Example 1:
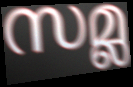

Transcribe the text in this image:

സമ്ല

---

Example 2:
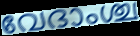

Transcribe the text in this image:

വേദാംശ്ച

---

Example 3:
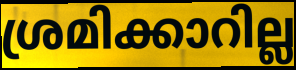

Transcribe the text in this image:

ശ്രമിക്കാറില്ല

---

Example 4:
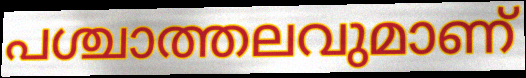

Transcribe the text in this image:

പശ്ചാത്തലവുമാണ്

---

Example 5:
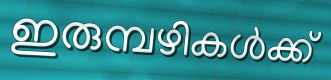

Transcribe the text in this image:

ഇരുമ്പഴികൾക്ക്